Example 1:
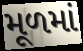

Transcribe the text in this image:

મૂળમાં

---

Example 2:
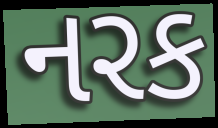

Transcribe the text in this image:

નરક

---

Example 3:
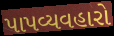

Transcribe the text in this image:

પાપવ્યવહારો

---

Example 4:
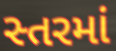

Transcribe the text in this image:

સ્તરમાં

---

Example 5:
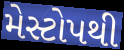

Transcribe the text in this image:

મેસ્ટોપથી